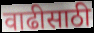
वाढीसाठी